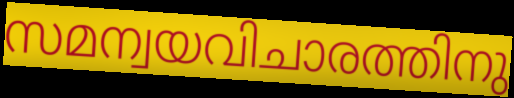
സമന്വയവിചാരത്തിനു